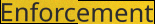
Enforcement